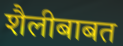
शैलीबाबत